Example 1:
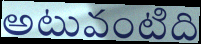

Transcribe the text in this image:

అటువంటిది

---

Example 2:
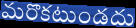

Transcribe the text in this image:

మరొకటుండదు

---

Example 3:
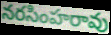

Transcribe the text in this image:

నరసింహరావు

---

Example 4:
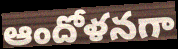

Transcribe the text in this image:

ఆందోళనగా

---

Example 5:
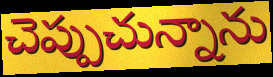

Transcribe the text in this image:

చెప్పుచున్నాను